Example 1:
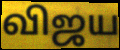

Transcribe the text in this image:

விஜய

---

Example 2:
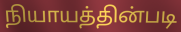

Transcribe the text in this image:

நியாயத்தின்படி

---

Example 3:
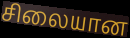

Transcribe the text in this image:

சிலையான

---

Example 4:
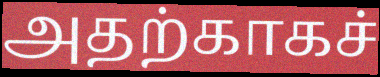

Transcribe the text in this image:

அதற்காகச்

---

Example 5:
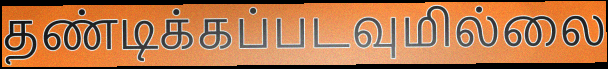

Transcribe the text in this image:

தண்டிக்கப்படவுமில்லை